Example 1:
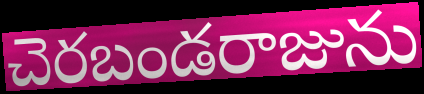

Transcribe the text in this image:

చెరబండరాజును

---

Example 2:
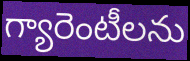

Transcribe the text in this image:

గ్యారెంటీలను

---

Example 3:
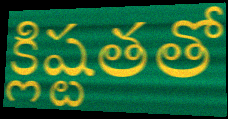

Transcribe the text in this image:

క్లిష్టతతో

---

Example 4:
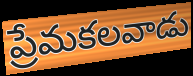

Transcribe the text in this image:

ప్రేమకలవాడు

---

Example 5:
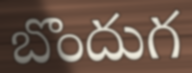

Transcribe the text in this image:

బొందుగ